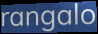
rangalo